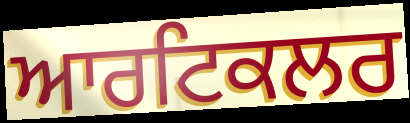
ਆਰਟਿਕਲਰ